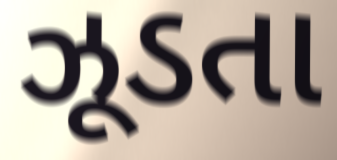
ઝૂડતા